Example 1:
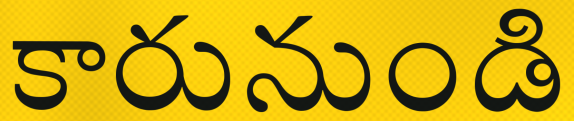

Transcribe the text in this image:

కారునుండి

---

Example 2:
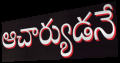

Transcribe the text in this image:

ఆచార్యుడనే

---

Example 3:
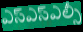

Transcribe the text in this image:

ఎస్ఎస్ఎల్సీ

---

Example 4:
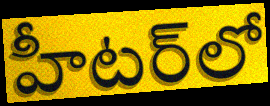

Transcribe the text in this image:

హీటర్‌లో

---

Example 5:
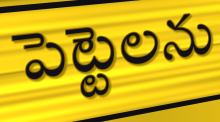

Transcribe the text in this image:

పెట్టెలను